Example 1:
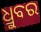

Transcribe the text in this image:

ଧ୍ରୁବର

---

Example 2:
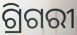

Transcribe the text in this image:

ଗ୍ରିଗରୀ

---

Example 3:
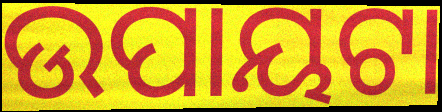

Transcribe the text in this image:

ଉପାୟଟା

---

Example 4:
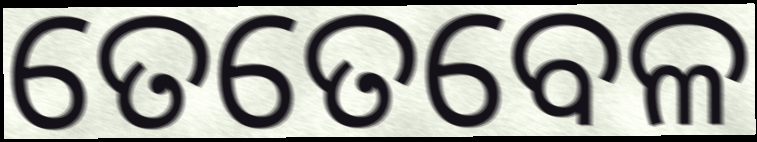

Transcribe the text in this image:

ତେତେବେଳ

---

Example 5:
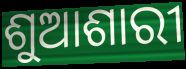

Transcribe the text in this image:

ଶୁଆଶାରୀ